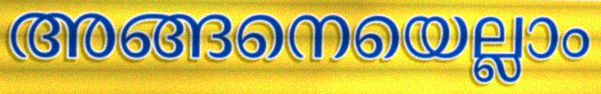
അങ്ങനെയെല്ലാം